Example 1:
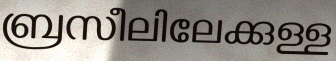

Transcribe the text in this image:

ബ്രസീലിലേക്കുള്ള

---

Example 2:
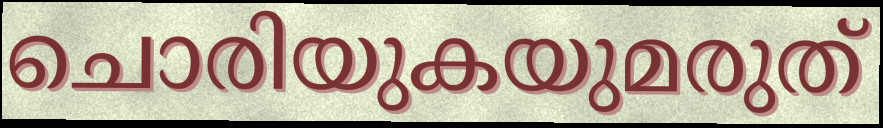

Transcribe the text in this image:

ചൊരിയുകയുമരുത്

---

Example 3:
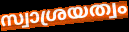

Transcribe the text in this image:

സ്വാശ്രയത്വം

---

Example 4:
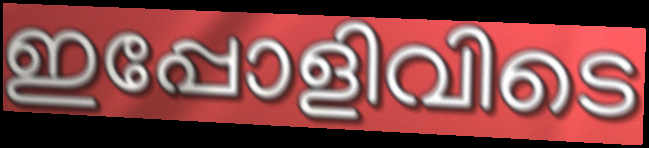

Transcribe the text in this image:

ഇപ്പോളിവിടെ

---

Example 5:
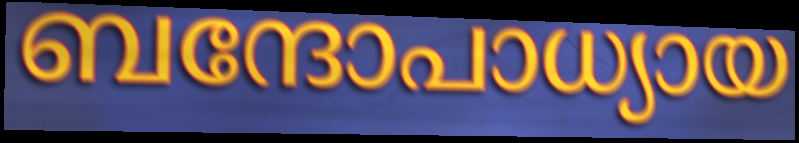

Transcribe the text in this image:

ബന്ദോപാധ്യായ